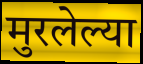
मुरलेल्या